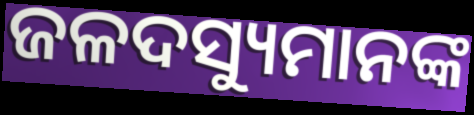
ଜଳଦସ୍ୟୁମାନଙ୍କ